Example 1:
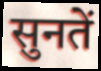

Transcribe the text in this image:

सुनतें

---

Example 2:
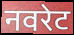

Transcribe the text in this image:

नवरेट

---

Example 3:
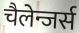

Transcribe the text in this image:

चैलेन्जर्स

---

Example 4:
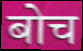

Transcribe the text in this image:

बोच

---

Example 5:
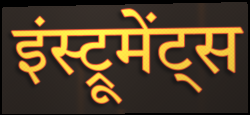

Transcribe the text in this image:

इंस्‍ट्रूमेंट्स